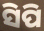
ସିପି